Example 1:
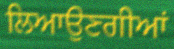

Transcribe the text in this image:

ਲਿਆਉਣਗੀਆਂ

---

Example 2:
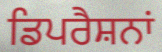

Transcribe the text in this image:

ਡਿਪਰੈਸ਼ਨਾਂ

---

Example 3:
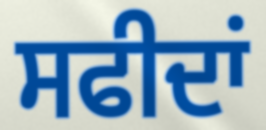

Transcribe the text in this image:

ਸਫੀਦਾਂ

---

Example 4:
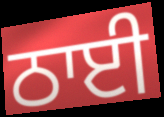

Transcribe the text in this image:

ਠਾਈ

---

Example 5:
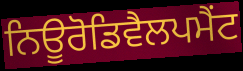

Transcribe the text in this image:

ਨਿਊਰੋਡਿਵੈਲਪਮੈਂਟ